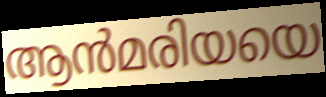
ആൻമരിയയെ